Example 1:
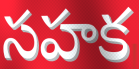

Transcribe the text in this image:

సహక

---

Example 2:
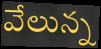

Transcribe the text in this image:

వేలున్న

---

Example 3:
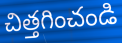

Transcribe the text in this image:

చిత్తగించండి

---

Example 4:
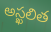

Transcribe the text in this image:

అస్ఖలిత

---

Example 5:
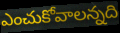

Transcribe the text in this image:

ఎంచుకోవాలన్నది